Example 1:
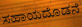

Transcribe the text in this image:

ಸಹಾಯದೊಡನೆ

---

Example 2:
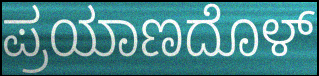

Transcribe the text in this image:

ಪ್ರಯಾಣದೊಳ್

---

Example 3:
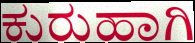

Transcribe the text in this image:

ಕುರುಹಾಗಿ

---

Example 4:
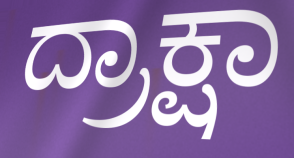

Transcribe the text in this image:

ದ್ರಾಕ್ಷಾ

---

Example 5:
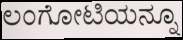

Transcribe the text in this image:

ಲಂಗೋಟಿಯನ್ನೂ